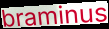
braminus